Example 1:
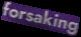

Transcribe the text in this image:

forsaking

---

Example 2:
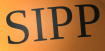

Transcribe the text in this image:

SIPP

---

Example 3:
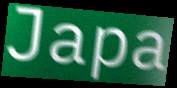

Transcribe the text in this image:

Japa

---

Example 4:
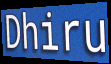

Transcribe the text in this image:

Dhiru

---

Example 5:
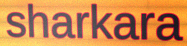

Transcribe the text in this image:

sharkara